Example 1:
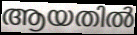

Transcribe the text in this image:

ആയതിൽ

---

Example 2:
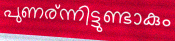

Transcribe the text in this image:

പുണര്ന്നിട്ടുണ്ടാകും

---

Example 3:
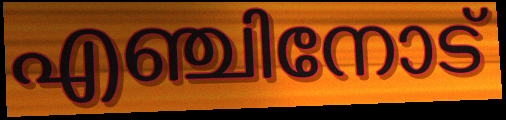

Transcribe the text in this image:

എഞ്ചിനോട്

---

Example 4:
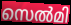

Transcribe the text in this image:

സെൽമി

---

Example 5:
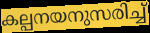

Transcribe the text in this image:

കല്പനയനുസരിച്ച്